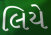
લિયે